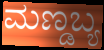
ಮಣ್ಡಬ್ಯ